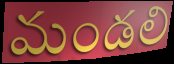
మండలి